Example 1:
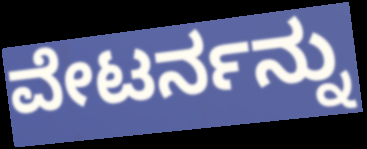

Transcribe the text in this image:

ವೇಟರ್ನನ್ನು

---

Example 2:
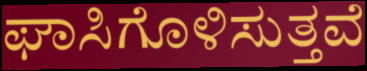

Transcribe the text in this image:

ಘಾಸಿಗೊಳಿಸುತ್ತವೆ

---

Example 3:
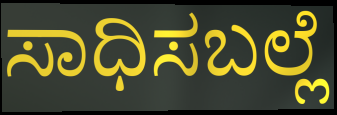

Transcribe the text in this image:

ಸಾಧಿಸಬಲ್ಲೆ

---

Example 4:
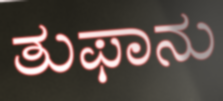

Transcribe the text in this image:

ತುಫಾನು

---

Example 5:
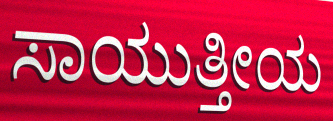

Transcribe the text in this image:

ಸಾಯುತ್ತೀಯ